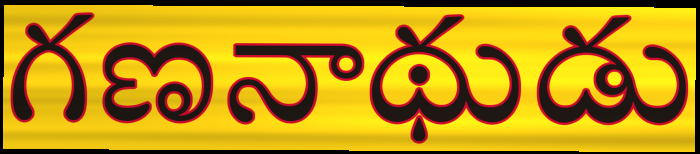
గణనాథుడు